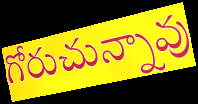
గోరుచున్నావు